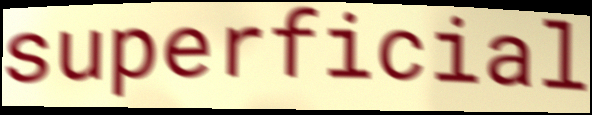
superficial